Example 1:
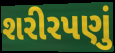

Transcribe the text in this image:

શરીરપણું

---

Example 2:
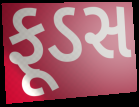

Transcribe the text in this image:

ફૂડસ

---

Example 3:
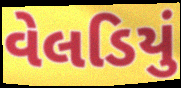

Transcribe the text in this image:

વેલડિયું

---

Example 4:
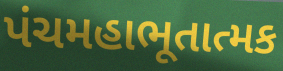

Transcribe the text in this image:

પંચમહાભૂતાત્મક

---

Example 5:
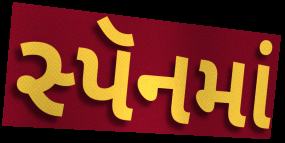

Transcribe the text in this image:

સ્પૅનમાં